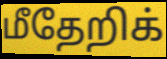
மீதேறிக்